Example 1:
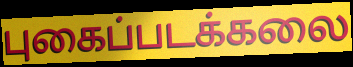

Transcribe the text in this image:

புகைப்படக்கலை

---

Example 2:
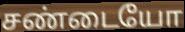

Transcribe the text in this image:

சண்டையோ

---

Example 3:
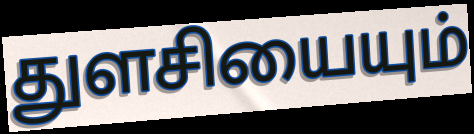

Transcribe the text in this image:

துளசியையும்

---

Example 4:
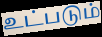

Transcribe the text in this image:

உட்படும்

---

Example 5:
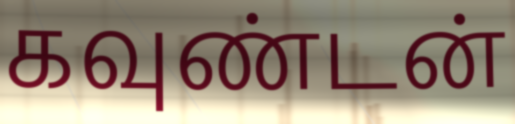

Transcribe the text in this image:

கவுண்டன்